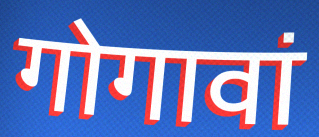
गोगावां